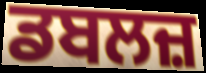
ਡਬਲਜ਼